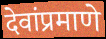
देवांप्रमाणे